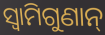
ସ୍ୱାମିଗୁଣାନ୍